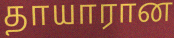
தாயாரான